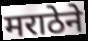
मराठेने